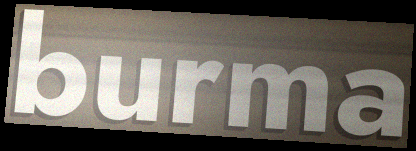
burma